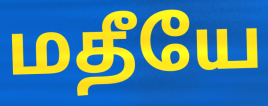
மதீயே